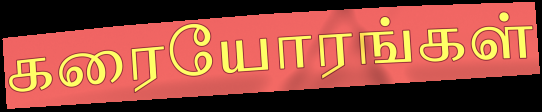
கரையோரங்கள்